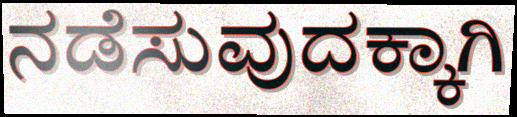
ನಡೆಸುವುದಕ್ಕಾಗಿ